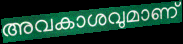
അവകാശവുമാണ്